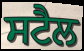
ਸਟੈਲ